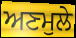
ਅਣਮੁਲੇ